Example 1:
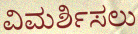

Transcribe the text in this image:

ವಿಮರ್ಶಿಸಲು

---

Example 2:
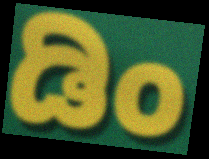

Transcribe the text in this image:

ಡಿಂ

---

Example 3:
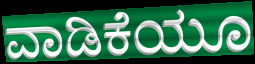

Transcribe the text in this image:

ವಾಡಿಕೆಯೂ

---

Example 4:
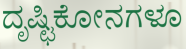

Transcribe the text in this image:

ದೃಷ್ಟಿಕೋನಗಳೂ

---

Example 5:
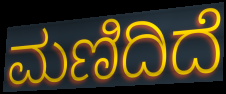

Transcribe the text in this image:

ಮಣಿದಿದೆ